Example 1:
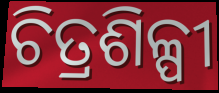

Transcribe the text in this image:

ଚିତ୍ରଶିଳ୍ପୀ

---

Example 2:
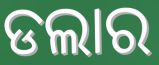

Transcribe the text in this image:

ଡଲାର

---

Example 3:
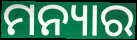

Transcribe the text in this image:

ମନ୍ୟାର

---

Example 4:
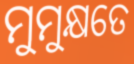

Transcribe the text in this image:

ମୁମୁକ୍ଷତେ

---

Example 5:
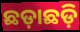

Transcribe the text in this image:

ଛଡ଼ାଛଡ଼ି